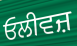
ਓਲੀਵਜ਼